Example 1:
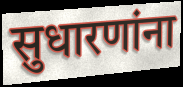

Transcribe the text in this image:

सुधारणांना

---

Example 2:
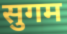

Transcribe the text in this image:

सुगम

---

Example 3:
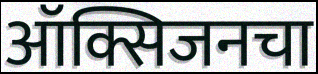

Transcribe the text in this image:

ऑक्सिजनचा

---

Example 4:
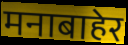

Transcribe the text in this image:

मनाबाहेर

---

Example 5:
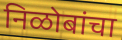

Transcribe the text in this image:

निळोबांचा